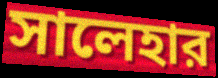
সালেহার